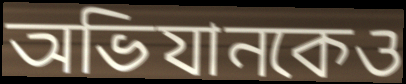
অভিযানকেও